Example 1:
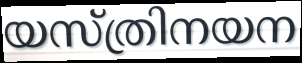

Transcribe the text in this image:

യസ്ത്രിനയന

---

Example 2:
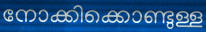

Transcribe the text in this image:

നോക്കിക്കൊണ്ടുള്ള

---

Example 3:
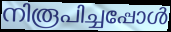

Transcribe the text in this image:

നിരൂപിച്ചപ്പോൾ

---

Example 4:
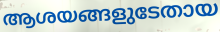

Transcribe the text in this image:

ആശയങ്ങളുടേതായ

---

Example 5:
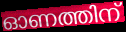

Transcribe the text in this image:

ഓണത്തിന്